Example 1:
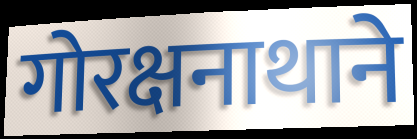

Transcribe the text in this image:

गोरक्षनाथाने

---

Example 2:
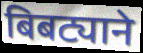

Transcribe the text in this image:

बिबट्याने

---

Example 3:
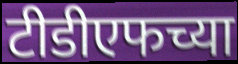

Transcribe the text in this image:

टीडीएफच्या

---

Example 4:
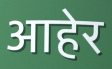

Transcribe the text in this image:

आहेर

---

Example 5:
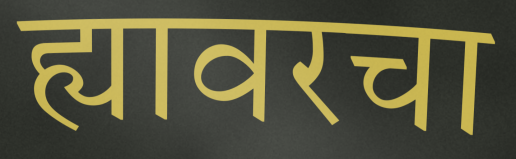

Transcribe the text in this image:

ह्यावरचा